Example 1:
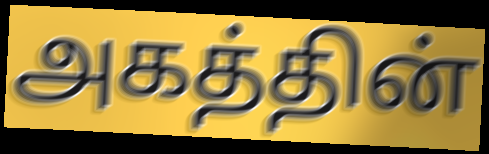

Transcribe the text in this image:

அகத்தின்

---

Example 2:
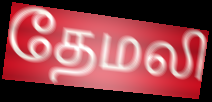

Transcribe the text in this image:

தேமலி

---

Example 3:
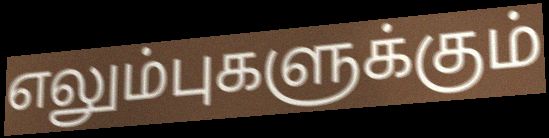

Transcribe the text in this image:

எலும்புகளுக்கும்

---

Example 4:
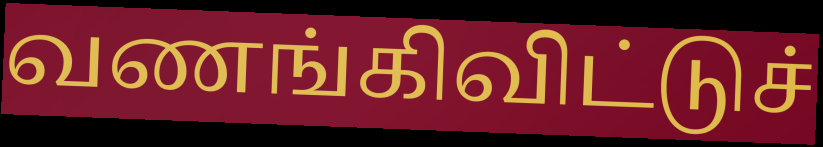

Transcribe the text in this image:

வணங்கிவிட்டுச்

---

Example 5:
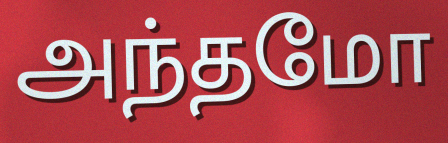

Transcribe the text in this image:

அந்தமோ